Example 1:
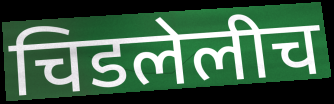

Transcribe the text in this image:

चिडलेलीच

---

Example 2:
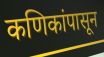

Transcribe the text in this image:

कणिकांपासून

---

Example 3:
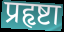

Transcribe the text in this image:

प्रहृष्टा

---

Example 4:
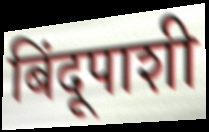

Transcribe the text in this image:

बिंदूपाशी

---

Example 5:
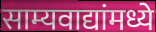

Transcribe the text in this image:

साम्यवाद्यांमध्ये